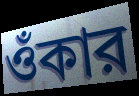
ওঁকার